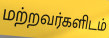
மற்றவர்களிடம்